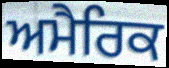
ਅਮੈਰਿਕ